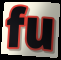
fu